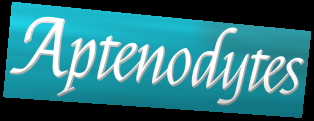
Aptenodytes